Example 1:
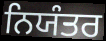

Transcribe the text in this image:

ਨਿਯੰਤਰ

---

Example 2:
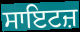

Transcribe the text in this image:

ਸਾਇਟਜ਼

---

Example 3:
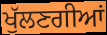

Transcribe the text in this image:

ਖੁੱਲਣਗੀਆਂ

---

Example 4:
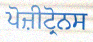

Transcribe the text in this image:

ਪੋਜ਼ੀਟ੍ਰੋਨਸ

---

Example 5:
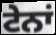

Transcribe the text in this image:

ਟੇਨਾਂ